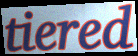
tiered